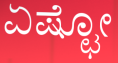
ಏಷ್ಟೋ